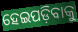
ହେଇପଡ଼ିବାକୁ